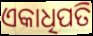
ଏକାଧିପତି